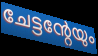
ചേട്ടന്റേയും